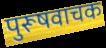
पुरूषवाचक